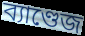
ব্যাণ্ডেজ